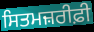
ਸਿਤਮਜ਼ਰੀਫ਼ੀ